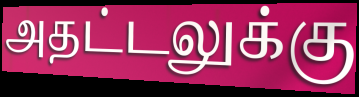
அதட்டலுக்கு